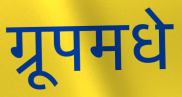
ग्रूपमधे